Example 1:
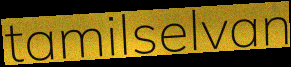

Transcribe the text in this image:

tamilselvan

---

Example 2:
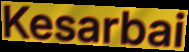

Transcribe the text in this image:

Kesarbai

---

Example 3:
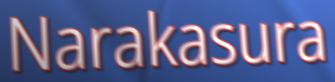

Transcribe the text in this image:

Narakasura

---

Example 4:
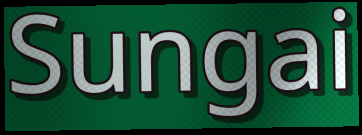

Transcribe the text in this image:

Sungai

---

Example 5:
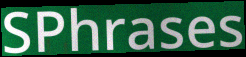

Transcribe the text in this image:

SPhrases